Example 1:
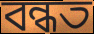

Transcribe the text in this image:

বন্ধত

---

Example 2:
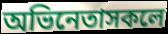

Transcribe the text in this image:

অভিনেতাসকলে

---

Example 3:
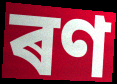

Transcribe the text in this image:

ৰণ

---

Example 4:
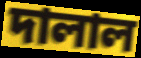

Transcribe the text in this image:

দালাল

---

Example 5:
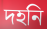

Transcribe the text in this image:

দহনি